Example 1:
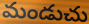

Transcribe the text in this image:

మండుచు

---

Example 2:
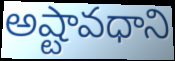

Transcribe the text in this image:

అష్టావధాని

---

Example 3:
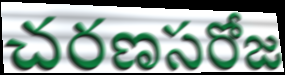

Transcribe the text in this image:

చరణసరోజ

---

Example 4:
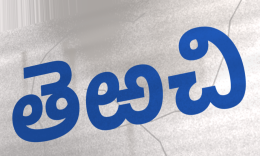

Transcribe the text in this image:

తెఱచి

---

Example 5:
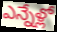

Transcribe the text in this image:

ఎన్నేళ్లో